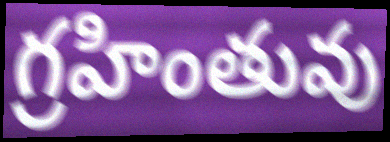
గ్రహింతువు